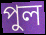
পুল